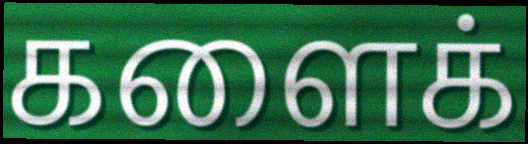
களைக்